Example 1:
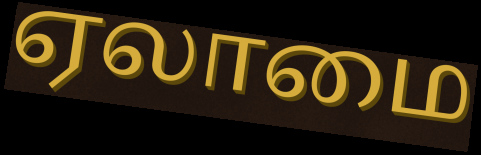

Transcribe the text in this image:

ஏலாமை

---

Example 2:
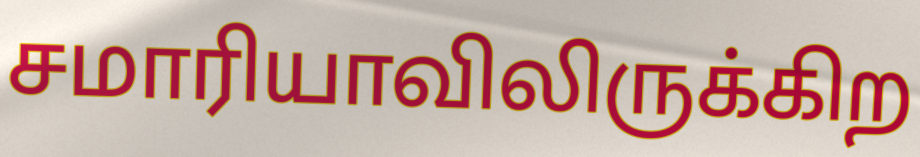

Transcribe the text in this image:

சமாரியாவிலிருக்கிற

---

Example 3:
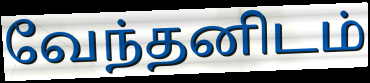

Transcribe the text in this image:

வேந்தனிடம்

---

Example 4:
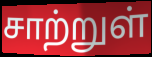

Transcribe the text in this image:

சாற்றுள்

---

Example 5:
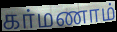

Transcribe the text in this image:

கர்மணாம்